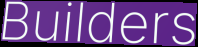
Builders